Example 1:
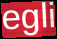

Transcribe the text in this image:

egli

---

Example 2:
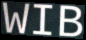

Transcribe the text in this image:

WIB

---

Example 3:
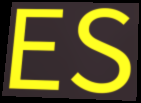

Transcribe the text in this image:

ES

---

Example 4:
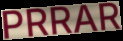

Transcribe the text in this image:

PRRAR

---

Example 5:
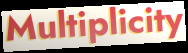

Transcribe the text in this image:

Multiplicity